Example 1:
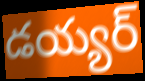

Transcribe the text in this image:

డయ్యర్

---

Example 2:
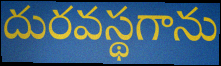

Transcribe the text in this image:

దురవస్థగాను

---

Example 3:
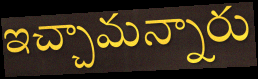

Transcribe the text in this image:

ఇచ్చామన్నారు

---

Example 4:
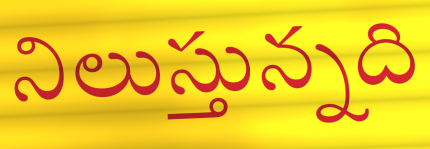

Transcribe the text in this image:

నిలుస్తున్నది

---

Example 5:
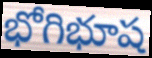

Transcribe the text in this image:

భోగిభూష